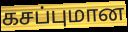
கசப்புமான